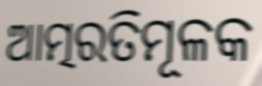
ଆତ୍ମରତିମୂଳକ